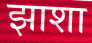
झाशा